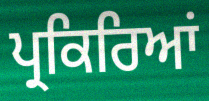
ਪ੍ਰਕਿਰਿਆਂ